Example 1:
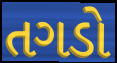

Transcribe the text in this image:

તગડો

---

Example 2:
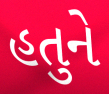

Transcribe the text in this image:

હતુને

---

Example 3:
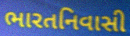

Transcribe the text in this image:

ભારતનિવાસી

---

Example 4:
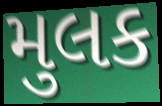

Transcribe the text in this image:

મુલક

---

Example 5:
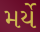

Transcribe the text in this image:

મર્યે